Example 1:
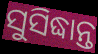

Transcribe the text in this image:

ସୁସିଦ୍ଧାନ୍ତ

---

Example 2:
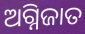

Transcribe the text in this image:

ଅଗ୍ନିଜାତ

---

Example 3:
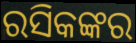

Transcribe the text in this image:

ରସିକଙ୍କର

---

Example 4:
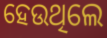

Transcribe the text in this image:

ହେଉଥିଲେ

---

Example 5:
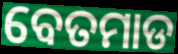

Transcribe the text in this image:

ବେତମାଡ